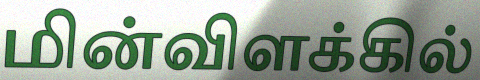
மின்விளக்கில்